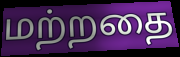
மற்றதை